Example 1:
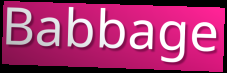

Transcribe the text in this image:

Babbage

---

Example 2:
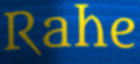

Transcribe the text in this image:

Rahe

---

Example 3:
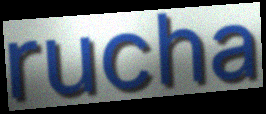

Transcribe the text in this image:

rucha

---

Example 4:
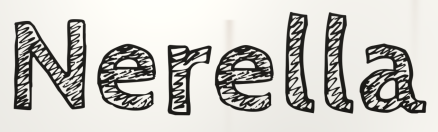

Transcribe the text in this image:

Nerella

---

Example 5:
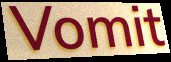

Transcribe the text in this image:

Vomit